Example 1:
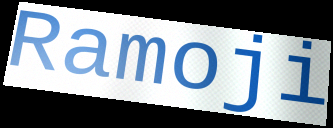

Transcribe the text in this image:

Ramoji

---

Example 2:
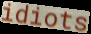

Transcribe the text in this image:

idiots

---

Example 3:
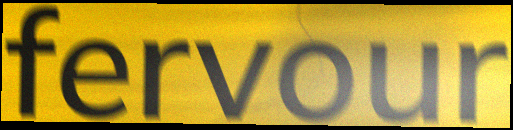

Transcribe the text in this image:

fervour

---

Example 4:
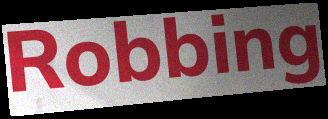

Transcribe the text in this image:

Robbing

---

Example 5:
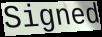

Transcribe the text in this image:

Signed